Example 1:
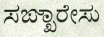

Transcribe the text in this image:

ಸಙ್ಖಾರೇಸು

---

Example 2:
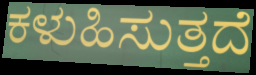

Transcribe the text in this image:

ಕಳುಹಿಸುತ್ತದೆ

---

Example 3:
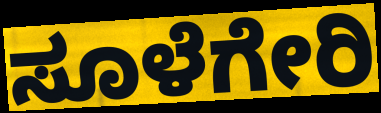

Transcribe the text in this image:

ಸೂಳೆಗೇರಿ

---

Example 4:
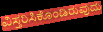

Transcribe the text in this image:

ವಿಸ್ತರಿಸಿಕೊಂಡಿರುವುದು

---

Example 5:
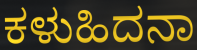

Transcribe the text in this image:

ಕಳುಹಿದನಾ